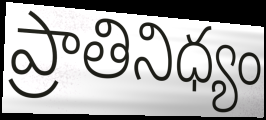
ప్రాతినిధ్యం